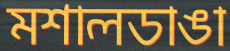
মশালডাঙা